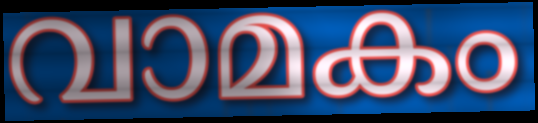
വാമകം